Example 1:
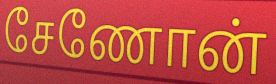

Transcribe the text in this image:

சேணோன்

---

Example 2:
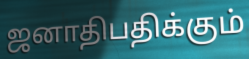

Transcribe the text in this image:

ஜனாதிபதிக்கும்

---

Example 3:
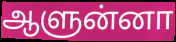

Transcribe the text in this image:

ஆளுன்னா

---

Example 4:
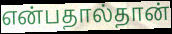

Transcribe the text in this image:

என்பதால்தான்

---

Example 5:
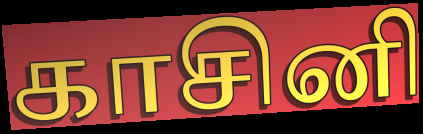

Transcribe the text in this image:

காசினி